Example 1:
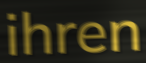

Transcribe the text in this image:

ihren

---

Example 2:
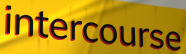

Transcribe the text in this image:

intercourse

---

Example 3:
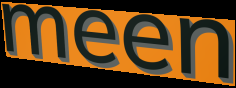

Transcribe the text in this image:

meen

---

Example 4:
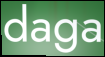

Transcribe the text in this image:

daga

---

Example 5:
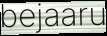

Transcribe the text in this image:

bejaaru